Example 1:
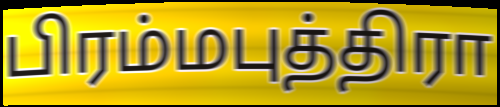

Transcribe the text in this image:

பிரம்மபுத்திரா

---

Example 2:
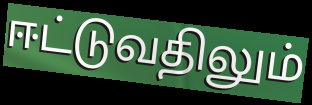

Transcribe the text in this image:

ஈட்டுவதிலும்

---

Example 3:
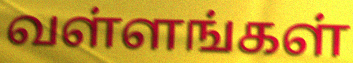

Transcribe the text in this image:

வள்ளங்கள்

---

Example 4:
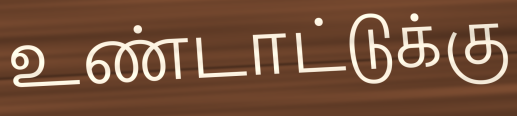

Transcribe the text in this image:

உண்டாட்டுக்கு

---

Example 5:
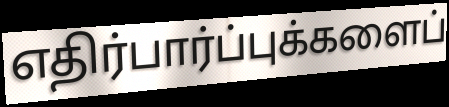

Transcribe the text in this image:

எதிர்பார்ப்புக்களைப்